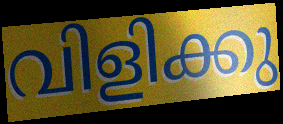
വിളിക്കു